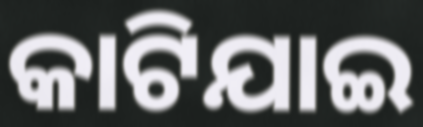
କାଟିଯାଇ